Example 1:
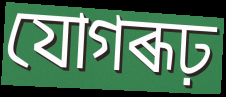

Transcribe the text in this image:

যোগৰূঢ়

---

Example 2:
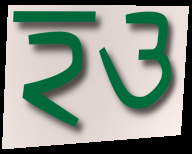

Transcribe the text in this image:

হও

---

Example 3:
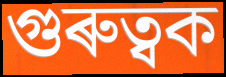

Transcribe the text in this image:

গুৰুত্বক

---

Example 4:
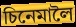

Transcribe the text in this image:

চিনেমালৈ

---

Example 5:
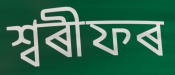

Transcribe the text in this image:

শ্বৰীফৰ